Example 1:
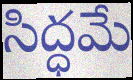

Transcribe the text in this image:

సిద్ధమే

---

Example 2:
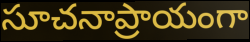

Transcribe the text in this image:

సూచనాప్రాయంగా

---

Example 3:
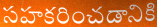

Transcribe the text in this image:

సహకరించడానికి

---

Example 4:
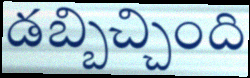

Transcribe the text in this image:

డబ్బిచ్చింది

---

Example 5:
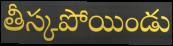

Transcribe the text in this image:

తీస్కపోయిండు